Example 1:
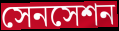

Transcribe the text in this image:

সেনসেশন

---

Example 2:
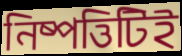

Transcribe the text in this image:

নিষ্পত্তিটিই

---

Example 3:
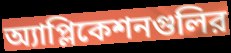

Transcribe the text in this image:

অ্যাপ্লিকেশনগুলির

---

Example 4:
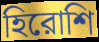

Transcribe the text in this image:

হিরোশি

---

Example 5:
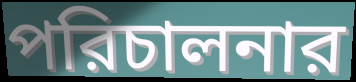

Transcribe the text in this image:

পরিচালনার